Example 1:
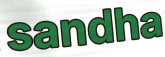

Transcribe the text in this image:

sandha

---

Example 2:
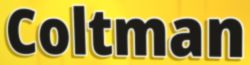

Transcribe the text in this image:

Coltman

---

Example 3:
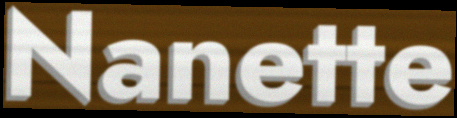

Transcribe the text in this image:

Nanette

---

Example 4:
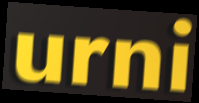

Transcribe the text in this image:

urni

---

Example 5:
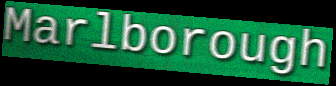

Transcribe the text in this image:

Marlborough